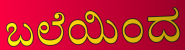
ಬಲೆಯಿಂದ